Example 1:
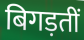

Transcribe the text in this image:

बिगड़तीं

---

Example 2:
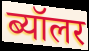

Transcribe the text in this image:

ब्यॉलर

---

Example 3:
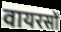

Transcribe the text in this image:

वायरसों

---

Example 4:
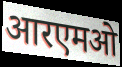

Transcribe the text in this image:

आरएमओ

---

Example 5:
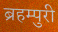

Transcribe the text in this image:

ब्रहम्पुरी